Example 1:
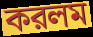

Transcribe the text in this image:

করলম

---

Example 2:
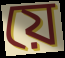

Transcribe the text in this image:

য়ে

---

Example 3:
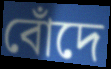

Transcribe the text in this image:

বোঁদে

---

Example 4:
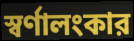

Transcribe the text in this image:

স্বর্ণালংকার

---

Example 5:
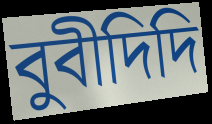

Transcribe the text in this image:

বুবীদিদি